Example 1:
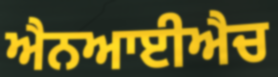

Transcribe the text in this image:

ਐਨਆਈਐਚ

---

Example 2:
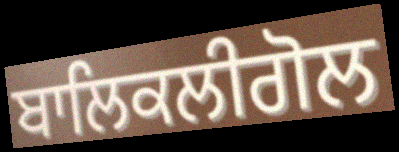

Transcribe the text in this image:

ਬਾਲਿਕਲੀਗੋਲ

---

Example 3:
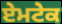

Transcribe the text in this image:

ਏਮਟੇਕ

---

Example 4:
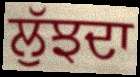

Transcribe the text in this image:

ਲੁੱਝਦਾ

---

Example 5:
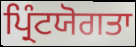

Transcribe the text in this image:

ਪ੍ਰਿੰਟਯੋਗਤਾ